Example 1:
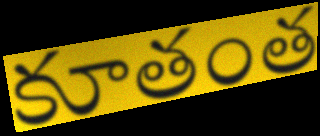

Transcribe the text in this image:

కూతంత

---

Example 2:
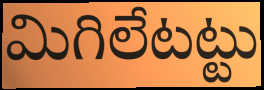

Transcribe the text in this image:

మిగిలేటట్టు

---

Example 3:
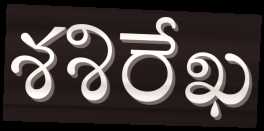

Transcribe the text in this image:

శశిరేఖ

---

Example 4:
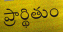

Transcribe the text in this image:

ప్రార్థితుం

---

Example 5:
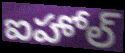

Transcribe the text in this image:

ఐహోల్